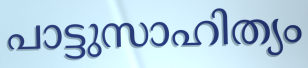
പാട്ടുസാഹിത്യം